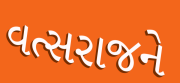
વત્સરાજને